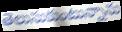
తెలుసుకుంటున్నాను